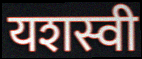
यशस्‍वी